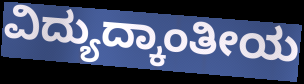
ವಿದ್ಯುದ್ಕಾಂತೀಯ